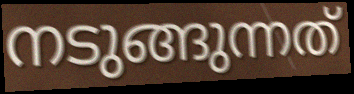
നടുങ്ങുന്നത്